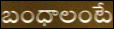
బంధాలంటే